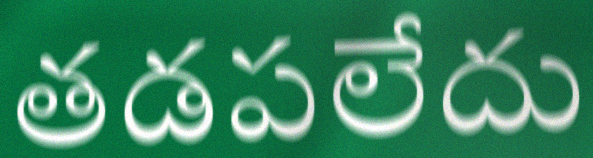
తడపలేదు